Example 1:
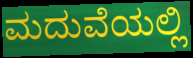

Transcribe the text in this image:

ಮದುವೆಯಲ್ಲಿ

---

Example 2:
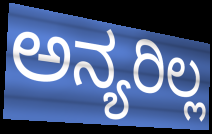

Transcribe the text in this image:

ಅನ್ಯರಿಲ್ಲ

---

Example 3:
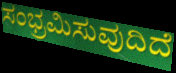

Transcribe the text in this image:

ಸಂಭ್ರಮಿಸುವುದಿದೆ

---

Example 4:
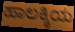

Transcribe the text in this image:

ಹಾಲಕ್ಕಿಯ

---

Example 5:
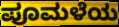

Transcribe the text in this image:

ಪೂಮಳೆಯ